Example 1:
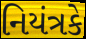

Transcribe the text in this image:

નિયંત્રકે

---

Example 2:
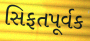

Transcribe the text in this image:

સિફતપૂર્વક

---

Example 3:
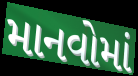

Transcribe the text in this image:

માનવોમાં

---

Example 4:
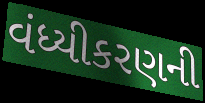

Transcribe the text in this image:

વંધ્યીકરણની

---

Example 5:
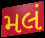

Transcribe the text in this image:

મલં